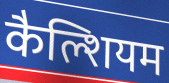
कैल्शियम